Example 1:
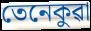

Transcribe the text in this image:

তেনেকুৱা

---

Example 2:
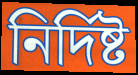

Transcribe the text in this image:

নিৰ্দিষ্ট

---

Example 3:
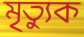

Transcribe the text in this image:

মৃত্যুক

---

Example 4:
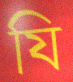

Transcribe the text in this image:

যি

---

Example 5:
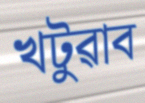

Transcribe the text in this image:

খটুৱাব